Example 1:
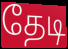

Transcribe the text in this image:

தேடி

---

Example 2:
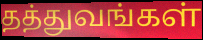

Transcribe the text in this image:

தத்துவங்கள்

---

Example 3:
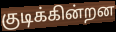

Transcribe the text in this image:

குடிக்கின்றன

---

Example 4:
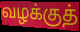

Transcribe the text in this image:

வழக்குத்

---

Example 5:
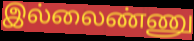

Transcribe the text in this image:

இல்லைண்ணு